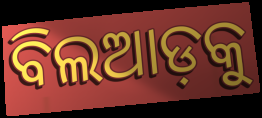
ବିଲଆଡ଼କୁ